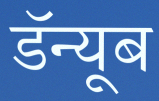
डॅन्यूब